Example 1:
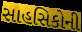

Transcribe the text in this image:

સાહસિકોની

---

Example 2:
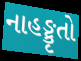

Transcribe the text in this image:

નાહઙ્કૃતો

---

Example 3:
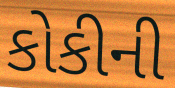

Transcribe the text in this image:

કોકીની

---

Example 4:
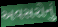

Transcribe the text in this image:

અવસરોનું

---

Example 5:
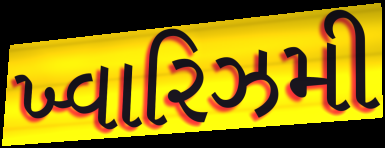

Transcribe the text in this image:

ખ્વારિઝમી